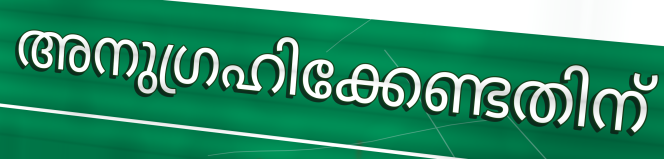
അനുഗ്രഹിക്കേണ്ടതിന്